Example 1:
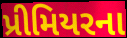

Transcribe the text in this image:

પ્રીમિયરના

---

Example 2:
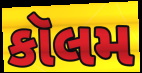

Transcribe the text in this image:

કૉલમ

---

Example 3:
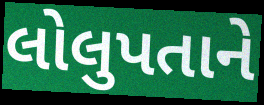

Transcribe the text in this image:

લોલુપતાને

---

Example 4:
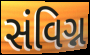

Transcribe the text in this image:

સંવિગ્ન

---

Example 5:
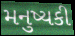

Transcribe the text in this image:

મનુષ્યકી